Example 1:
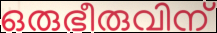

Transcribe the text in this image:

ഒരുഭീരുവിന്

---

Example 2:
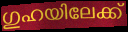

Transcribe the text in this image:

ഗുഹയിലേക്ക്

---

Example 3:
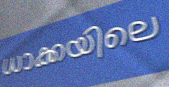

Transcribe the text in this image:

ധാക്കയിലെ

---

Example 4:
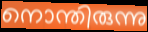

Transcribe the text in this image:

നൊന്തിരുന്നു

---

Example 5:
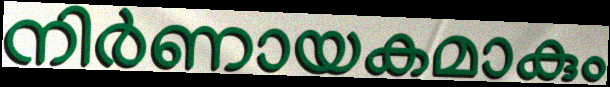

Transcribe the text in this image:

നിർണായകമാകും